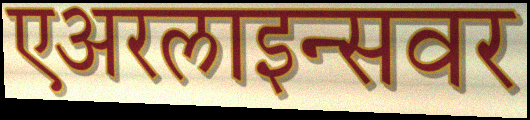
एअरलाइन्सवर